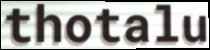
thotalu